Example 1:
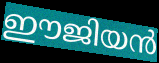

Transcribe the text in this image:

ഈജിയൻ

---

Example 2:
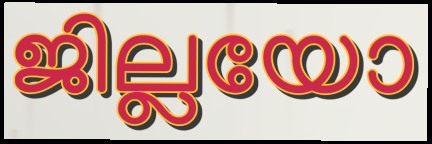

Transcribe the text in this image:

ജില്ലയോ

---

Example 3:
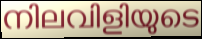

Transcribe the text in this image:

നിലവിളിയുടെ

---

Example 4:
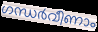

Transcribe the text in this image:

ഗന്ധർവീണാം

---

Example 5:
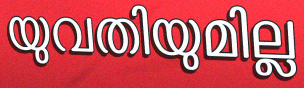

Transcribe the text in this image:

യുവതിയുമില്ല